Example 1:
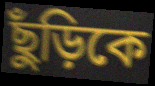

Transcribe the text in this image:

ছুঁড়িকে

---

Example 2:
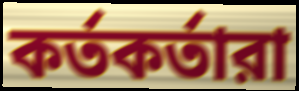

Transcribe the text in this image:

কর্তকর্তারা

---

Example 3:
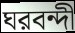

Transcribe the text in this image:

ঘরবন্দী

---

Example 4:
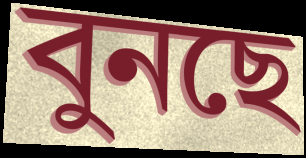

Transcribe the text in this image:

বুনছে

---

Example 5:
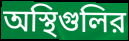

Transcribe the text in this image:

অস্থিগুলির